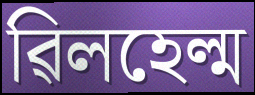
ৱিলহেল্ম